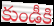
కుండీకి